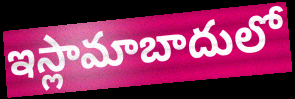
ఇస్లామాబాదులో